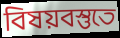
বিষয়বস্তুতে